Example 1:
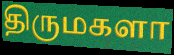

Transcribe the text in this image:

திருமகளா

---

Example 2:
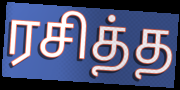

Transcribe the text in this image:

ரசித்த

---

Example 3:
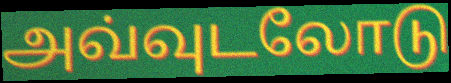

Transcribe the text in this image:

அவ்வுடலோடு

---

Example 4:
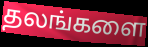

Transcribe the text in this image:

தலங்களை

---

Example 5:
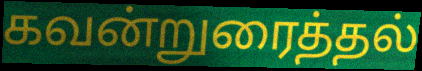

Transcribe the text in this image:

கவன்றுரைத்தல்